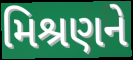
મિશ્રણને